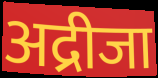
अद्रीजा